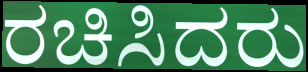
ರಚಿಸಿದರು